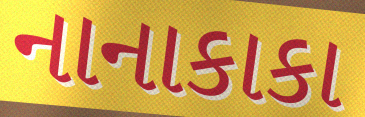
નાનાકાકા